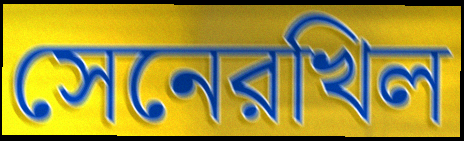
সেনেরখিল